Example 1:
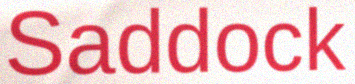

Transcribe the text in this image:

Saddock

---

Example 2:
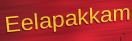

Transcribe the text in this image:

Eelapakkam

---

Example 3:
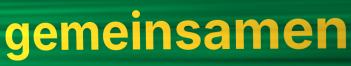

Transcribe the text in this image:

gemeinsamen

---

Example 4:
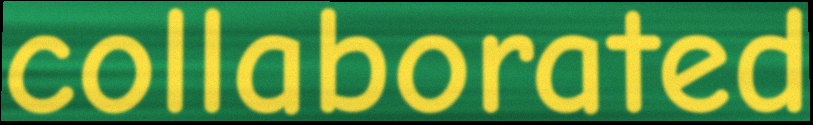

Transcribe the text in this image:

collaborated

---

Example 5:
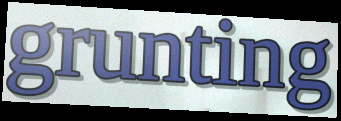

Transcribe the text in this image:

grunting